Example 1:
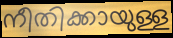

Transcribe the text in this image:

നീതിക്കായുള്ള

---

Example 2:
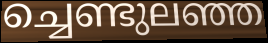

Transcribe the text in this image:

ച്ചെണ്ടുലഞ്ഞ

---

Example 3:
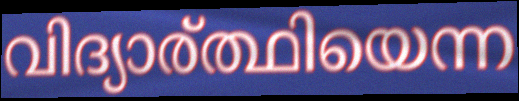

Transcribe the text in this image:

വിദ്യാര്ത്ഥിയെന്ന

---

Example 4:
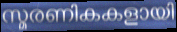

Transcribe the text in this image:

സ്മരണികകളായി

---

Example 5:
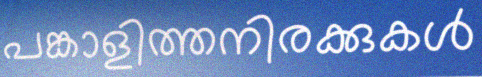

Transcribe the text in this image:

പങ്കാളിത്തനിരക്കുകൾ